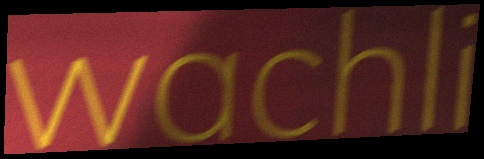
wachli